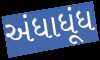
અંધાધૂંધ